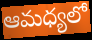
ఆమధ్యలో